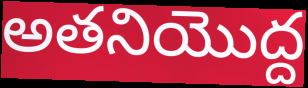
అతనియొద్ద